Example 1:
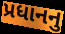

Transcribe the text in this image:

પ્રધાનનુ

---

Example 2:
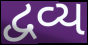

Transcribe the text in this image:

દ્વવ્ય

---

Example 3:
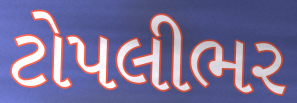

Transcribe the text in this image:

ટોપલીભર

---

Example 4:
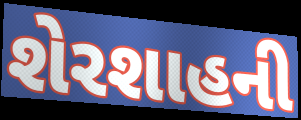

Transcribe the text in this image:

શેરશાહની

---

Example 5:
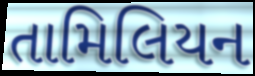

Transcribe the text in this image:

તામિલિયન